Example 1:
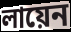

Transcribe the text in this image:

লায়েন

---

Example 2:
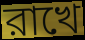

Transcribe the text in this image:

রাখে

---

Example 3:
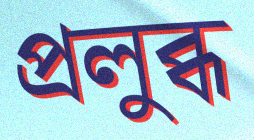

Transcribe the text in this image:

প্রলুব্ধ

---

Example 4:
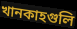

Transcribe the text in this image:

খানকাহগুলি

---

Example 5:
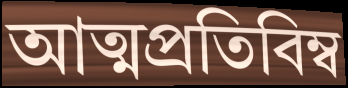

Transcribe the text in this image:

আত্মপ্রতিবিম্ব